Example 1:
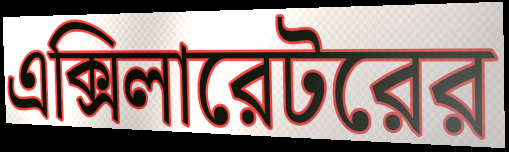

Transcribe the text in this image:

এক্সিলারেটরের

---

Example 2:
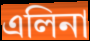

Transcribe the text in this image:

এলিনা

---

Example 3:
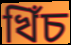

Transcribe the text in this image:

খিঁচ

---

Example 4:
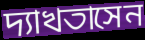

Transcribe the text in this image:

দ্যাখতাসেন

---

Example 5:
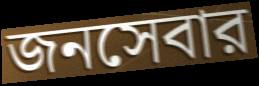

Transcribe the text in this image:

জনসেবার